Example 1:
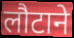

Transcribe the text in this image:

लौटाने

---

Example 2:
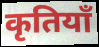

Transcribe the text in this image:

कृतियाँ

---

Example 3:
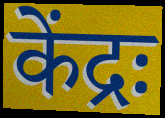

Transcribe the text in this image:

केंद्रः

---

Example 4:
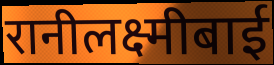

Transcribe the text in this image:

रानीलक्ष्मीबाई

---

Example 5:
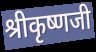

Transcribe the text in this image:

श्रीकृष्णजी